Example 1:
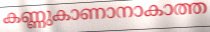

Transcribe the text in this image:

കണ്ണുകാണാനാകാത്ത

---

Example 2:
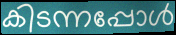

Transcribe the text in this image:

കിടന്നപ്പോൾ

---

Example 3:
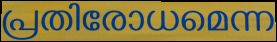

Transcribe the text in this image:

പ്രതിരോധമെന്ന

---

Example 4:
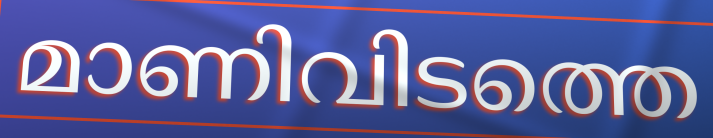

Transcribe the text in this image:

മാണിവിടത്തെ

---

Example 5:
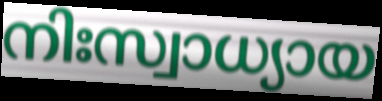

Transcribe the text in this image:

നിഃസ്വാധ്യായ